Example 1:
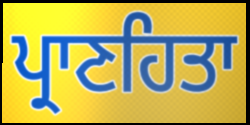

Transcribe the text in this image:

ਪ੍ਰਾਣਹਿਤਾ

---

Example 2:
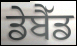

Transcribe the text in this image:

ਡੇਬੈੱਡ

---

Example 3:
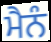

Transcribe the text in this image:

ਮੈਨੰ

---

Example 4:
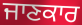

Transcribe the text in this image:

ਜਾਣਕਾਰ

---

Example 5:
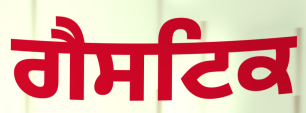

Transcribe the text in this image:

ਗੈਸਟਿਕ